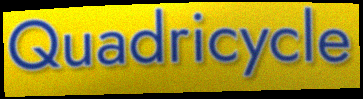
Quadricycle